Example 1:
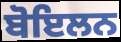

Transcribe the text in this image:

ਬੋਇਲਨ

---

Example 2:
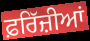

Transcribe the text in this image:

ਫ਼ਰਿੱਜ਼ੀਆਂ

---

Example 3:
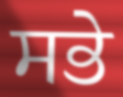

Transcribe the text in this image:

ਸਭੇ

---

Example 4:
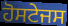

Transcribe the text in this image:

ਹੋਸਟੇਜਸ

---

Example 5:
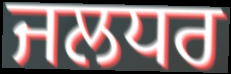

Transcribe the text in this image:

ਜਲਧਰ